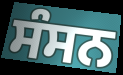
ਸੰਸਨ